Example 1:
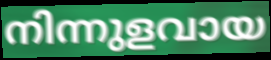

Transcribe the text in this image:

നിന്നുളവായ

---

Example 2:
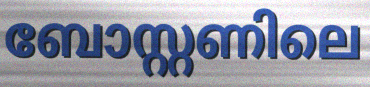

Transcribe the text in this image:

ബോസ്റ്റണിലെ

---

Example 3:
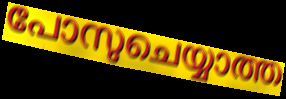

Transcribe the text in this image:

പോസുചെയ്യാത്ത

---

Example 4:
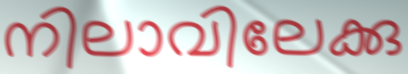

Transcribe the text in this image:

നിലാവിലേക്കു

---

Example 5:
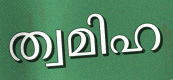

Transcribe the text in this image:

ത്വമിഹ